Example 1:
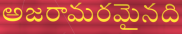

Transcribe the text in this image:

అజరామరమైనది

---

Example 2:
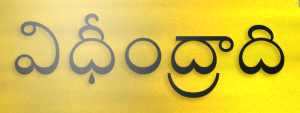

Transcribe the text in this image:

విధీంద్రాది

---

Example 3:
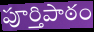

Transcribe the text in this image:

పూర్తిపాఠం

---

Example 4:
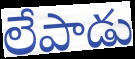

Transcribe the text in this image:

లేపాడు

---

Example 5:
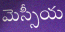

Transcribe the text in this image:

మెస్సీయ